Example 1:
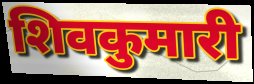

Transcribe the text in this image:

शिवकुमारी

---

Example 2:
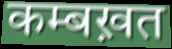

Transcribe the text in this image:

कम्बख़त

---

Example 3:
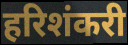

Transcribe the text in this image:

हरिशंकरी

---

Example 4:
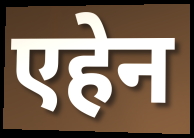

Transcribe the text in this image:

एहेन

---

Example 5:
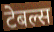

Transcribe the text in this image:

टेबल्स